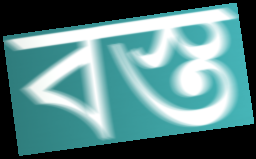
বস্ত